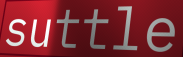
suttle